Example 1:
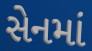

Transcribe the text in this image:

સેનમાં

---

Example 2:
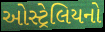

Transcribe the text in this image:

ઓસ્ટ્રેલિયનો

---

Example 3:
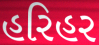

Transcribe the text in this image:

હરિહર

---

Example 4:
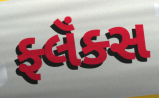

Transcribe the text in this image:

ફ્લૅંક્સ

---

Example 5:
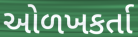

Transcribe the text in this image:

ઓળખકર્તા